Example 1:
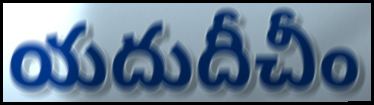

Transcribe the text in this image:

యదుదీచీం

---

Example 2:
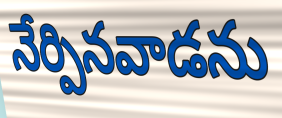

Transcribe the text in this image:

నేర్పినవాడను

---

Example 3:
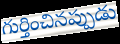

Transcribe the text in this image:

గుర్తించినప్పుడు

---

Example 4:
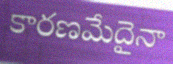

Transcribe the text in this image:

కారణమేదైనా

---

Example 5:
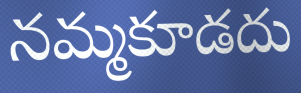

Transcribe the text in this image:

నమ్మకూడదు